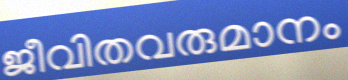
ജീവിതവരുമാനം